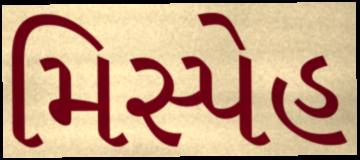
મિસ્પેહ